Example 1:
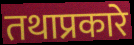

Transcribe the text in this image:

तथाप्रकारे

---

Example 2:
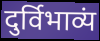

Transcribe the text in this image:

दुर्विभाव्यं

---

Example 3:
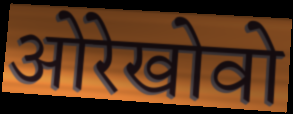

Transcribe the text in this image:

ओरेखोवो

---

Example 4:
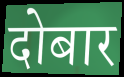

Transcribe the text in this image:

दोबार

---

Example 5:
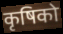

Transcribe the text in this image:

कृषिको